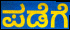
ಪಡೆಗೆ